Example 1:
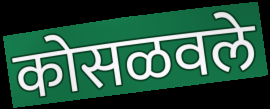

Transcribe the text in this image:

कोसळवले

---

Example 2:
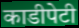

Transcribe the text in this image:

काडीपेटी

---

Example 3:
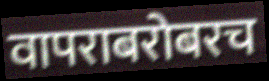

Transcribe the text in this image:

वापराबरोबरच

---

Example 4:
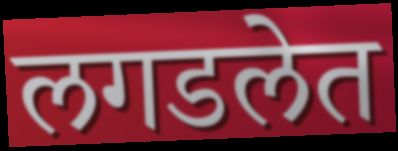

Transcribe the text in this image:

लगडलेत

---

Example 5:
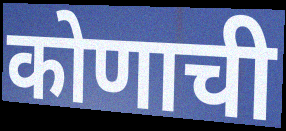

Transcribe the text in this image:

कोणाची